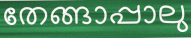
തേങ്ങാപ്പാലു